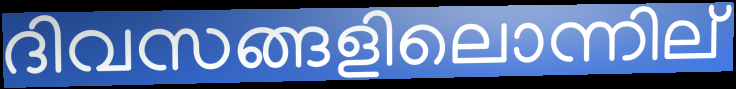
ദിവസങ്ങളിലൊന്നില്